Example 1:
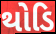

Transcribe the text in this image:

થોડિ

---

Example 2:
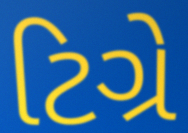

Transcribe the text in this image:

ટિગ્રે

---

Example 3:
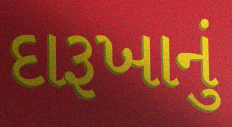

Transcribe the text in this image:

દારૂખાનું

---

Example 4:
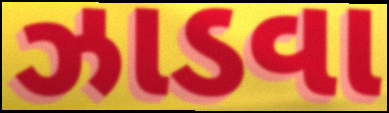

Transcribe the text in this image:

ઝાડવા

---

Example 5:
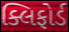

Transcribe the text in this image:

ક્લિફોર્ડ